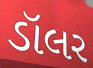
ડૉલર